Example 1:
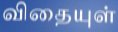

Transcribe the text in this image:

விதையுள்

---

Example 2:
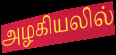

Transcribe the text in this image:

அழகியலில்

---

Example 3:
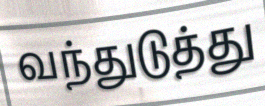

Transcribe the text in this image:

வந்துடுத்து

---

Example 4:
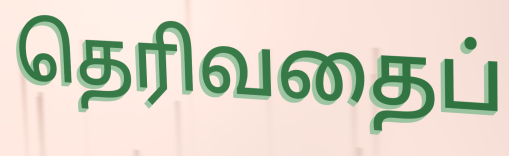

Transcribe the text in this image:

தெரிவதைப்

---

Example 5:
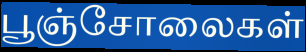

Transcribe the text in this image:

பூஞ்சோலைகள்